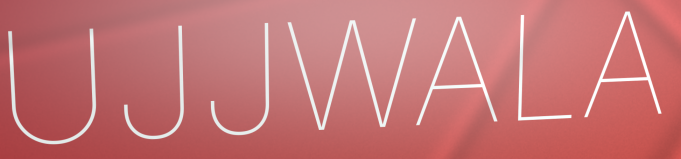
UJJWALA